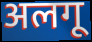
अलगू